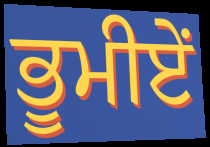
ਭੂਮੀਏਂ